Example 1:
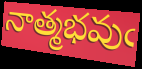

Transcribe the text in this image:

నాత్మభవుఁ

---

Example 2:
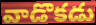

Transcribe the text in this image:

వాడొకడు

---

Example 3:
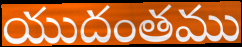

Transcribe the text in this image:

యుదంతము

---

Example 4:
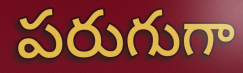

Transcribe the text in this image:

పరుగుగా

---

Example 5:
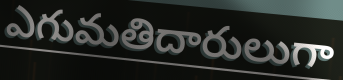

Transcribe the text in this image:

ఎగుమతిదారులుగా